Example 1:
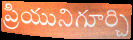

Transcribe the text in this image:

ప్రియునిగూర్చి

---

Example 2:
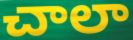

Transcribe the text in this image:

చాలా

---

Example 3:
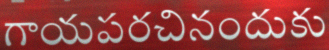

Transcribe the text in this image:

గాయపరచినందుకు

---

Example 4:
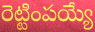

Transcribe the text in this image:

రెట్టింపయ్యే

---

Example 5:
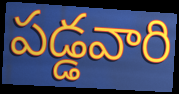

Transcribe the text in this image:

పడ్డవారి